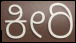
ಕೀರಿ